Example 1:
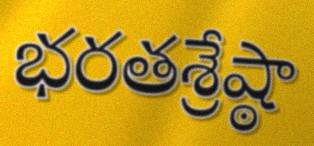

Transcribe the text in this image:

భరతశ్రేష్ఠా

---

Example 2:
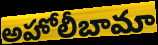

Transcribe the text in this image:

అహోలీబామా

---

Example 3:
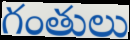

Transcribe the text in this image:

గంతులు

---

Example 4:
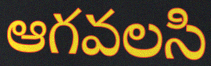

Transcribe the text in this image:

ఆగవలసి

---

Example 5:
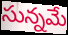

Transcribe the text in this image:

సున్నమే